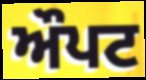
ਔਪਟ